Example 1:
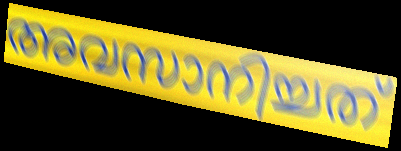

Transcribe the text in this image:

അവസാനിച്ചത്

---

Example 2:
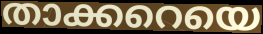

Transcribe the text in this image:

താക്കറെയെ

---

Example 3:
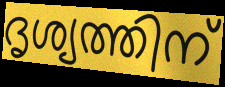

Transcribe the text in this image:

ദൃശ്യത്തിന്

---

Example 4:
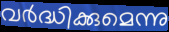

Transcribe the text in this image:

വർദ്ധിക്കുമെന്നു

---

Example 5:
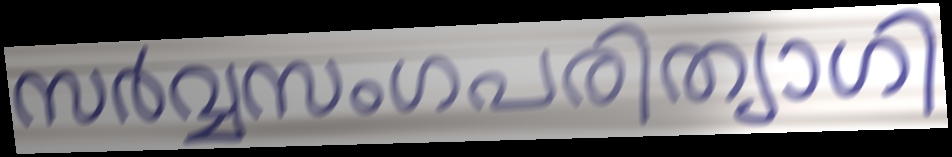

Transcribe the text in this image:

സർവ്വസംഗപരിത്യാഗി